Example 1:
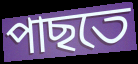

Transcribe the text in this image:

পাছতে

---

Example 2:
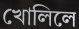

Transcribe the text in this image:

খোলিলে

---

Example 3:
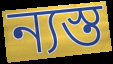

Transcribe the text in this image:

ন্যস্ত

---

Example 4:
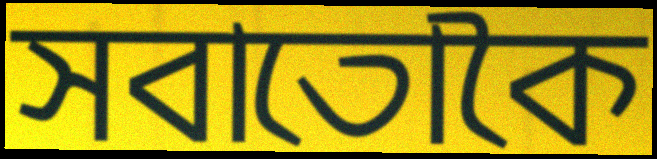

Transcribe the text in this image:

সবাতোকৈ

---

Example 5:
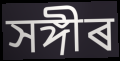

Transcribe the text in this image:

সঙ্গীৰ